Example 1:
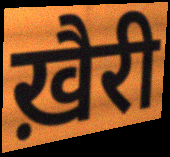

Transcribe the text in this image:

ख़ैरी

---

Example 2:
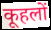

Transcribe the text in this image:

कूहलों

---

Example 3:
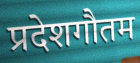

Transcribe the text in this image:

प्रदेशगौतम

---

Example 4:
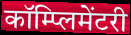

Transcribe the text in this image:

कॉम्प्लिमेंटरी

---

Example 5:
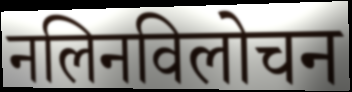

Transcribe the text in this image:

नलिनविलोचन